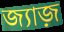
জ্যাজ়